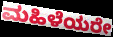
ಮಹಿಳೆಯರೇ